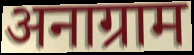
अनाग्राम